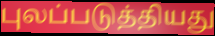
புலப்படுத்தியது